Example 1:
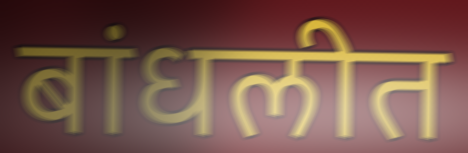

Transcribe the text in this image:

बांधलीत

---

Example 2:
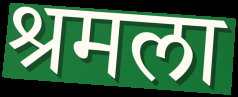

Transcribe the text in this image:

श्रमला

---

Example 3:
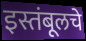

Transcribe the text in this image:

इस्तंबूलचे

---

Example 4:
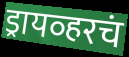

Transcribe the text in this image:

ड्रायव्हरचं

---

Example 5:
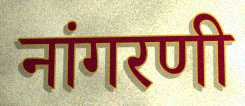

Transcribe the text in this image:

नांगरणी